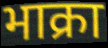
भाक्रा